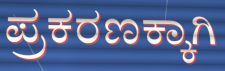
ಪ್ರಕರಣಕ್ಕಾಗಿ